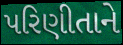
પરિણીતાને